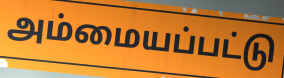
அம்மையப்பட்டு